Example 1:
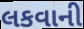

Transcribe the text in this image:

લકવાની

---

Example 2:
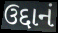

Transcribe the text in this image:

ઉદ્દાનં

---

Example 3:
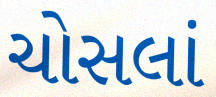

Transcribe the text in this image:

ચોસલાં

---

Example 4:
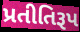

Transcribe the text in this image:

પ્રતીતિરૂપ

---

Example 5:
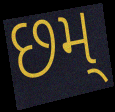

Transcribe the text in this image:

છમ્